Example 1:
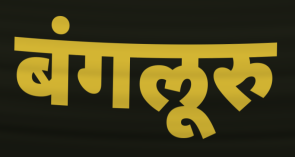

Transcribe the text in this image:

बंगलूरु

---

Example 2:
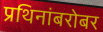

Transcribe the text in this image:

प्रथिनांबरोबर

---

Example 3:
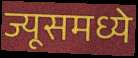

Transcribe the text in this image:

ज्यूसमध्ये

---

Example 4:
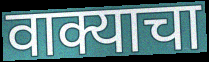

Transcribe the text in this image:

वाक्याचा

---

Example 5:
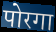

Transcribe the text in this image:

पोरगा